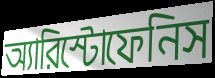
অ্যারিস্টোফেনিস